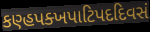
કણ્હપક્ખપાટિપદદિવસં